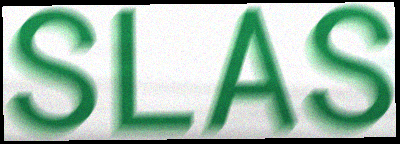
SLAS